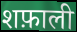
शफ़ाली